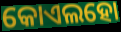
କୋଏଲହୋ